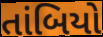
તાંબિયો